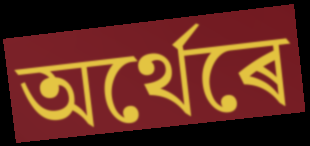
অৰ্থেৰে